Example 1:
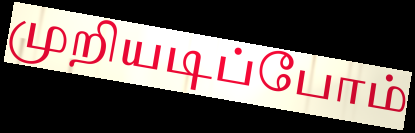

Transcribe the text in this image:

முறியடிப்போம்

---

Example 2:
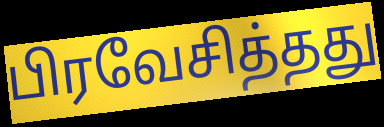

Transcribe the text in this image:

பிரவேசித்தது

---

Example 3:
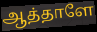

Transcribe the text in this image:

ஆத்தாளே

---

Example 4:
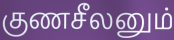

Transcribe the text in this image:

குணசீலனும்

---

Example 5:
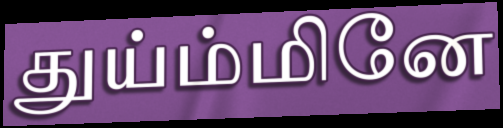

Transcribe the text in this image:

துய்ம்மினே